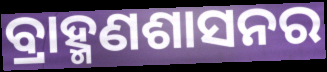
ବ୍ରାହ୍ମଣଶାସନର